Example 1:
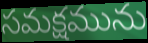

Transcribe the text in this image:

సమక్షమును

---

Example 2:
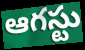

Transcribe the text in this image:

ఆగస్టు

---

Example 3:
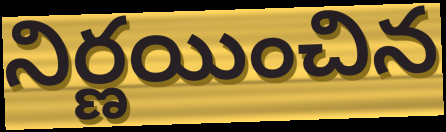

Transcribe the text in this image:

నిర్ణయించిన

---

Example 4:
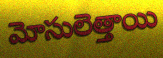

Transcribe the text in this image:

మోసులెత్తాయి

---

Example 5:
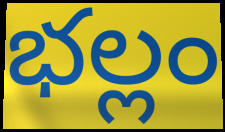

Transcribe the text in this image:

భల్లం